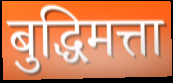
बुद्धिमत्ता